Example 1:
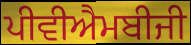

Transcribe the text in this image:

ਪੀਵੀਐਮਬੀਜੀ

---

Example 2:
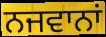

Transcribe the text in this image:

ਨਜਵਾਨਾਂ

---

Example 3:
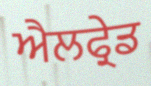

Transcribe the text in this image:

ਐਲਫ੍ਰੇਡ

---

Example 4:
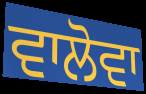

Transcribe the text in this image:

ਵਾਲੋਵਾ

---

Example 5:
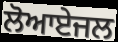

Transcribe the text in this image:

ਲੋਆਏਜਲ